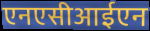
एनएसीआईएन